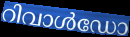
റിവാൾഡോ